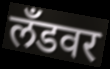
लँडवर